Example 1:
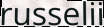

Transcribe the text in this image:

russelii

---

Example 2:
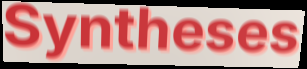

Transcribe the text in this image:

Syntheses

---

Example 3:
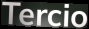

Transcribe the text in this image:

Tercio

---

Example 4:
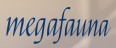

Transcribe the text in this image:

megafauna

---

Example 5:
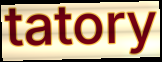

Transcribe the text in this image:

tatory